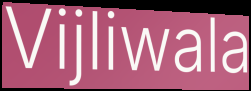
Vijliwala